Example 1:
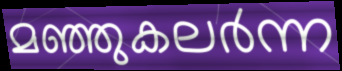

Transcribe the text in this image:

മഞ്ഞുകലർന്ന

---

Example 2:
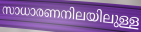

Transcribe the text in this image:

സാധാരണനിലയിലുള്ള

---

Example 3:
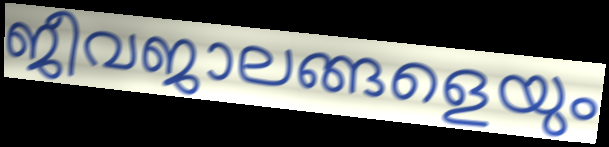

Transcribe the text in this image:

ജീവജാലങ്ങളെയും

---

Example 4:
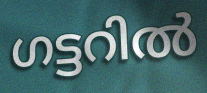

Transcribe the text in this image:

ഗട്ടറിൽ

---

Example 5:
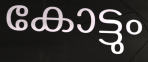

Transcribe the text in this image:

കോട്ടും